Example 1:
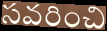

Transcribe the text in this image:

సవరించి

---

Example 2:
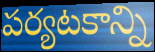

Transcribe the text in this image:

పర్యటకాన్ని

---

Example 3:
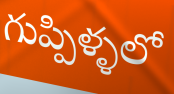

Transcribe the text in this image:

గుప్పిళ్ళలో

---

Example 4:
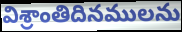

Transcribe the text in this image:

విశ్రాంతిదినములను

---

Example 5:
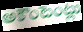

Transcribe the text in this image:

అకౌంటెంట్లు